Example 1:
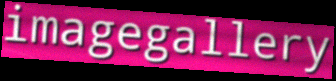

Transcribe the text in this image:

imagegallery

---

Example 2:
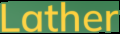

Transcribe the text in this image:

Lather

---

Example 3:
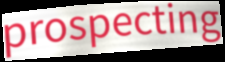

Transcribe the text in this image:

prospecting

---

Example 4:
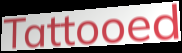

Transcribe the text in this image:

Tattooed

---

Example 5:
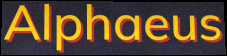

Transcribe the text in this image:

Alphaeus